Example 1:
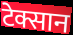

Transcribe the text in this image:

टेक्सान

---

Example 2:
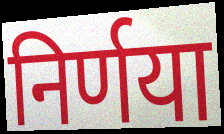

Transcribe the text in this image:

निर्णया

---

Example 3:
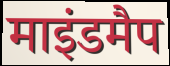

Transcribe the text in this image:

माइंडमैप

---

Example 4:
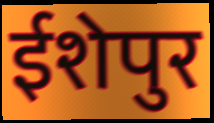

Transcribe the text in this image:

ईशेपुर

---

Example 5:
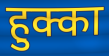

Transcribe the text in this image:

हुक्का